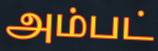
அம்பட்